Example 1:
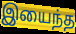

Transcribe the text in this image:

இயைந்த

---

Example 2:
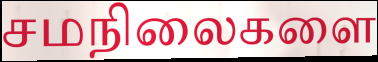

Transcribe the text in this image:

சமநிலைகளை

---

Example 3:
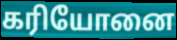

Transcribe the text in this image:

கரியோனை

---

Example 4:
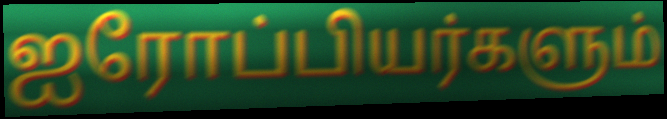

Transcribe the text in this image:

ஐரோப்பியர்களும்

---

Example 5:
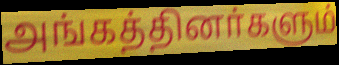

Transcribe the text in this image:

அங்கத்தினர்களும்